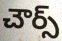
చౌర్స్